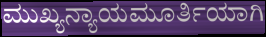
ಮುಖ್ಯನ್ಯಾಯಮೂರ್ತಿಯಾಗಿ